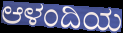
ಆಳಂದಿಯ